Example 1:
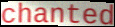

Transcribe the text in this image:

chanted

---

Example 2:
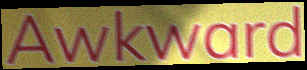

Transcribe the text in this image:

Awkward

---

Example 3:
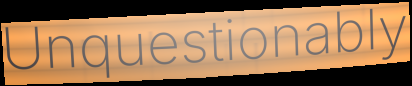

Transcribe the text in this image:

Unquestionably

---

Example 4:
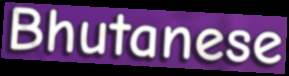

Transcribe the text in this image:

Bhutanese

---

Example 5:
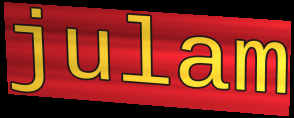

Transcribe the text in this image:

julam